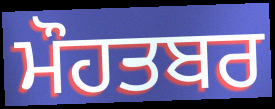
ਮੌਹਤਬਰ